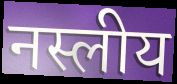
नस्लीय